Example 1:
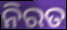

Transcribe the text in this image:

ନିରତ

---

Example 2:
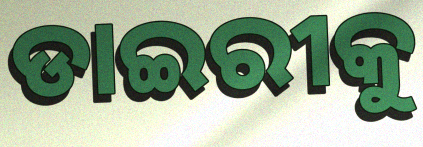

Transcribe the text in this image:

ଡାଇରୀକୁ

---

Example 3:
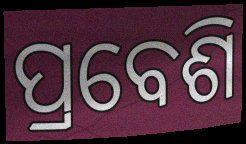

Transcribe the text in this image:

ପ୍ରବେଶି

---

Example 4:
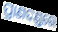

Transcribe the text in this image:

ପ୍ରାଣଦଣ୍ଡରେ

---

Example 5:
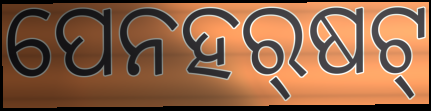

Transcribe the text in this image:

ପେନହର୍‍ଷଟ୍